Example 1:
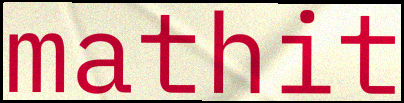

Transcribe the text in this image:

mathit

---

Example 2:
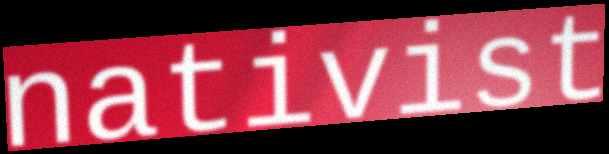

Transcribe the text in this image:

nativist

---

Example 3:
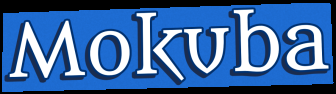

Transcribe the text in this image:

Mokuba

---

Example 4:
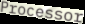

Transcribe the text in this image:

Processor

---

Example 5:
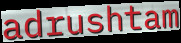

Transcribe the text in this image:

adrushtam